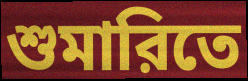
শুমারিতে